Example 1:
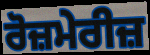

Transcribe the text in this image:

ਰੋਜ਼ਮੇਰੀਜ਼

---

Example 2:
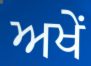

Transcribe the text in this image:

ਅਖੇਂ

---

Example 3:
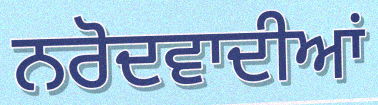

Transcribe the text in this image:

ਨਰੋਦਵਾਦੀਆਂ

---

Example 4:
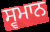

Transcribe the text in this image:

ਸ੍ਵਮਾਨ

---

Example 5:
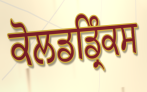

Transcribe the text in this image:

ਕੋਲਡਡ੍ਰਿੰਕਸ